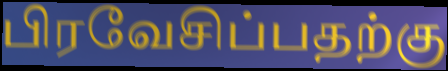
பிரவேசிப்பதற்கு